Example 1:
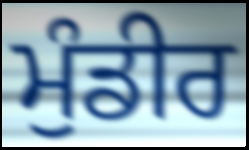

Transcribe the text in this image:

ਮੁੰਡੀਰ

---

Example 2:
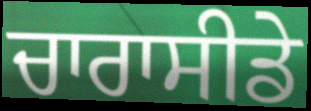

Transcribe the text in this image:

ਚਾਰਾਸੀਡੇ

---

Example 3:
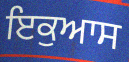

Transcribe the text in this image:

ਇਕੁਆਸ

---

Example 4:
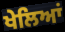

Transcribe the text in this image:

ਖੇਲਿਆਂ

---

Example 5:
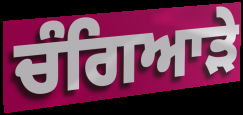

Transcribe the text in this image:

ਚੰਗਿਆੜੇ